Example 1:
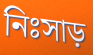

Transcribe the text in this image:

নিঃসাড়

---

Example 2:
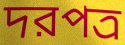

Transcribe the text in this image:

দরপত্র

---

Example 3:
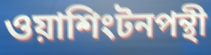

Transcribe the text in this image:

ওয়াশিংটনপন্থী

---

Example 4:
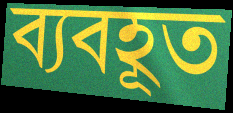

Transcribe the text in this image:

ব্যবহূত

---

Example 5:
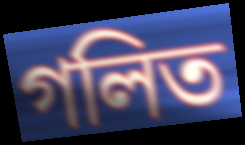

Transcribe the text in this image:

গলিত